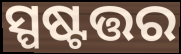
ସ୍ପଷ୍ଟତ୍ତର